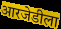
आरजेडीला